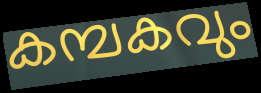
കമ്പകവും